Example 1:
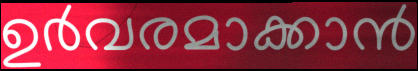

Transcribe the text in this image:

ഉർവരമാക്കാൻ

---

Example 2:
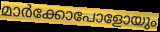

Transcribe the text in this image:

മാർക്കോപോളോയും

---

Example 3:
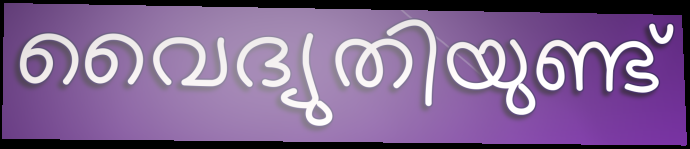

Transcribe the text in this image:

വൈദ്യുതിയുണ്ട്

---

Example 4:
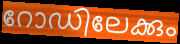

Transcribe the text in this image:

റോഡിലേക്കും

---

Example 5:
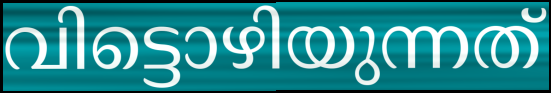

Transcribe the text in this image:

വിട്ടൊഴിയുന്നത്